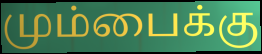
மும்பைக்கு